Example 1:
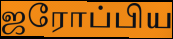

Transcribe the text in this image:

ஜரோப்பிய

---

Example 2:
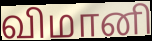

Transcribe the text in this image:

விமானி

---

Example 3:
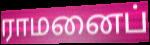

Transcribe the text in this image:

ராமனைப்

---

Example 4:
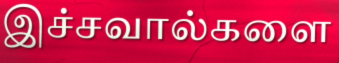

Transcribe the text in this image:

இச்சவால்களை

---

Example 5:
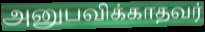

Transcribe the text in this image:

அனுபவிக்காதவர்